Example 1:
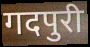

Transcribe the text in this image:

गदपुरी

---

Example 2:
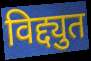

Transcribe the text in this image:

विद्द्युत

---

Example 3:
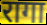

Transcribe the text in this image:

रागा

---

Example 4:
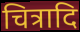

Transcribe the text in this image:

चित्रादि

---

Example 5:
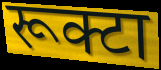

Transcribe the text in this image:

रूक्टा